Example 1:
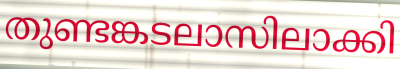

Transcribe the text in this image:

തുണ്ടങ്കടലാസിലാക്കി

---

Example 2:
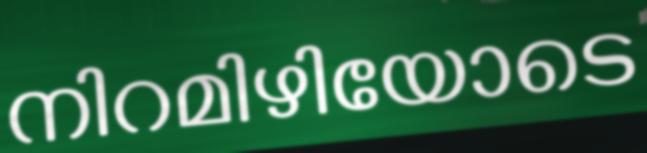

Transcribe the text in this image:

നിറമിഴിയോടെ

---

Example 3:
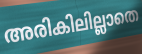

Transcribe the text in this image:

അരികിലില്ലാതെ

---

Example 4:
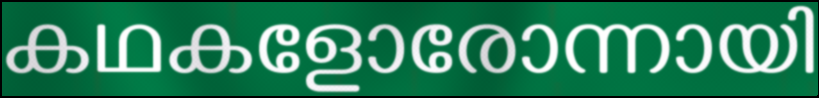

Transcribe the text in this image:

കഥകളോരോന്നായി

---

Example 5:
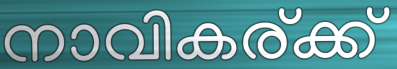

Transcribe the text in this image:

നാവികര്ക്ക്